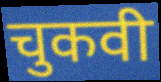
चुकवी